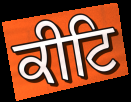
ਕੀਟਿ